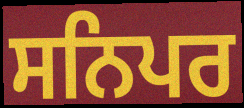
ਸਨਿਪਰ